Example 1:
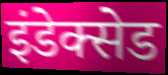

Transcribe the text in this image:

इंडेक्सेड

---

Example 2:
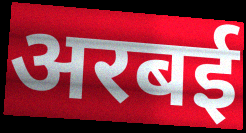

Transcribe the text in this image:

अरबई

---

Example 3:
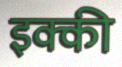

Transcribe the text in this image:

इक्की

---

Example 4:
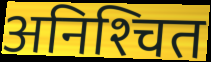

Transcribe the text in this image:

अनिश्चित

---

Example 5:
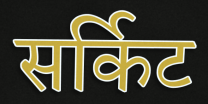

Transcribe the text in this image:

सर्किट